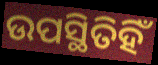
ଉପସ୍ଥିତିହିଁ